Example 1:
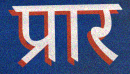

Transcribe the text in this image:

प्रार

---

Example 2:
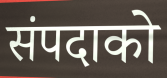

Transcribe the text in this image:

संपदाको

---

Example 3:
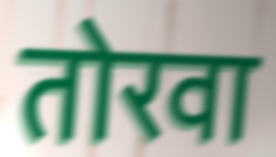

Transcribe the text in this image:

तोरवा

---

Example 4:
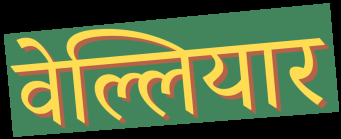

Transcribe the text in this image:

वेल्लियार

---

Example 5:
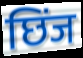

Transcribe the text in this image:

छिंज